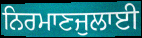
ਨਿਰਮਾਣਜੁਲਾਈ